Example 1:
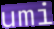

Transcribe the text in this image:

umi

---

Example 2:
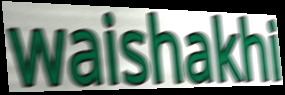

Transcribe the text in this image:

waishakhi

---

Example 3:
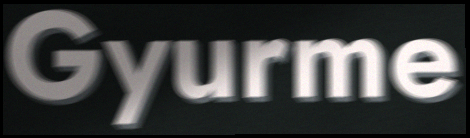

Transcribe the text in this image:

Gyurme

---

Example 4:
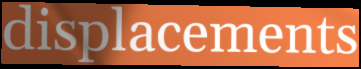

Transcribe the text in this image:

displacements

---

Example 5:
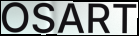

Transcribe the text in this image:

OSART